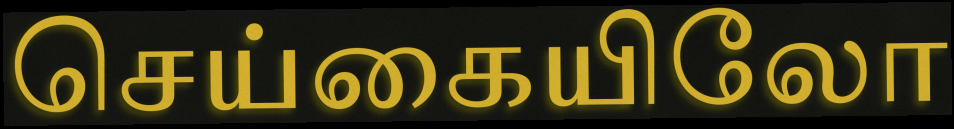
செய்கையிலோ